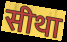
सीथा